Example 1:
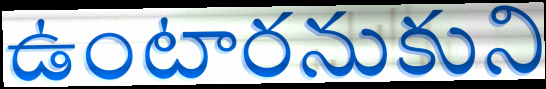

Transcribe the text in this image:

ఉంటారనుకుని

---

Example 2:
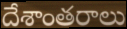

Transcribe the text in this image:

దేశాంతరాలు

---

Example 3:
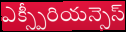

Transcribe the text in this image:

ఎక్స్పీరియన్సెస్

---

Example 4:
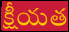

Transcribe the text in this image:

క్షీయత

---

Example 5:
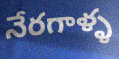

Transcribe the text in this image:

నేరగాళ్ళ